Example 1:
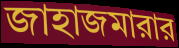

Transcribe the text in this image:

জাহাজমারার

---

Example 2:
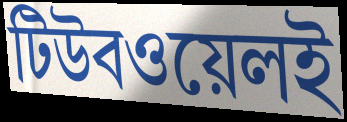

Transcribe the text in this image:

টিউবওয়েলই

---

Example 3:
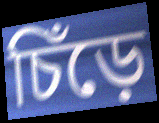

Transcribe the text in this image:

চিঁড়ে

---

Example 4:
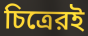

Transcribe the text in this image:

চিত্রেরই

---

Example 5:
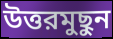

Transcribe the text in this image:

উত্তরমুছুন